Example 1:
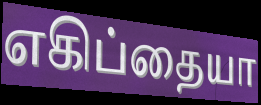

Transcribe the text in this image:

எகிப்தையா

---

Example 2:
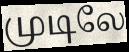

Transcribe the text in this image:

முடிலே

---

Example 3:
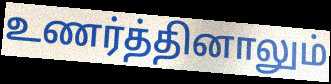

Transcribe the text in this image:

உணர்த்தினாலும்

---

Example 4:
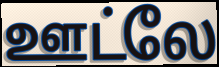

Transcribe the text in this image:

ஊட்லே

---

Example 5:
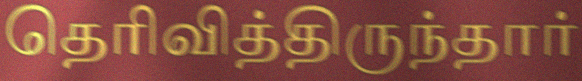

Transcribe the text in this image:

தெரிவித்திருந்தார்